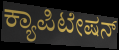
ಕ್ಯಾಪಿಟೇಷನ್